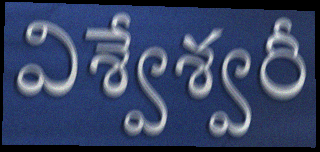
విశ్వేశ్వరీ